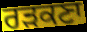
ਰੜਕਣਾ